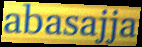
abasajja